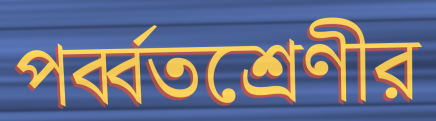
পর্ব্বতশ্রেণীর